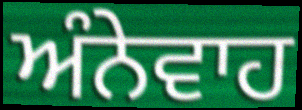
ਅੰਨੇਵਾਹ